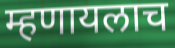
म्हणायलाच